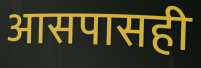
आसपासही